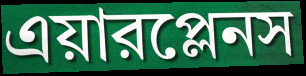
এয়ারপ্লেনস